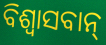
ବିଶ୍ଵାସବାନ୍